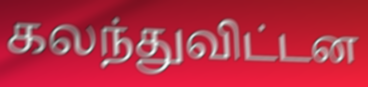
கலந்துவிட்டன